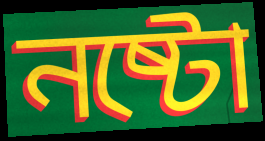
নষ্টো